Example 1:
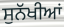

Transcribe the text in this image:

ਸੁਨੱਖੀਆਂ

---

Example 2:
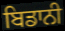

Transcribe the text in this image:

ਬਿਡਾਨੀ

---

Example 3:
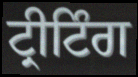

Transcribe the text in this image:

ਟ੍ਰੀਟਿੰਗ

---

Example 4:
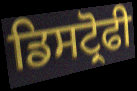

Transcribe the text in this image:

ਡਿਸਟ੍ਰੋਫੀ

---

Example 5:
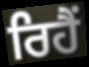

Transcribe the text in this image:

ਰਿਹੈਂ